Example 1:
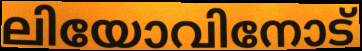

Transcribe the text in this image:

ലിയോവിനോട്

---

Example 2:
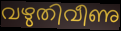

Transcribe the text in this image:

വഴുതിവീണു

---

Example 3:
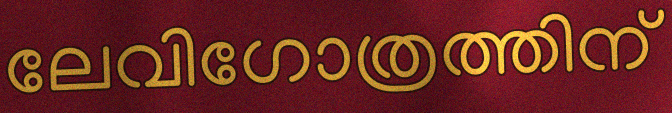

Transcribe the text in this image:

ലേവിഗോത്രത്തിന്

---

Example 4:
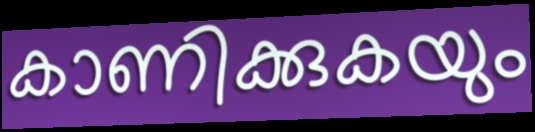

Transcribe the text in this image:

കാണിക്കുകയും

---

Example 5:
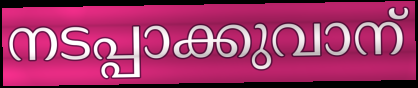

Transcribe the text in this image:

നടപ്പാക്കുവാന്